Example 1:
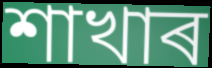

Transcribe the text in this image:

শাখাৰ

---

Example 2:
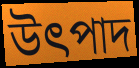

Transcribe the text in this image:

উৎপাদ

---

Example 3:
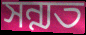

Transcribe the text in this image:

সন্মত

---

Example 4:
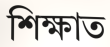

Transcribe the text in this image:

শিক্ষাত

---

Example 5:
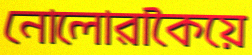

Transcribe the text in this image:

নোলোৱাকৈয়ে